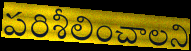
పరిశీలించాలని